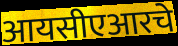
आयसीएआरचे